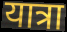
यात्रा